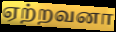
ஏற்றவனா